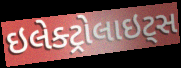
ઇલેક્ટ્રોલાઇટ્સ